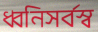
ধ্বনিসর্বস্ব